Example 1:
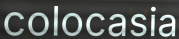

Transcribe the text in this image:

colocasia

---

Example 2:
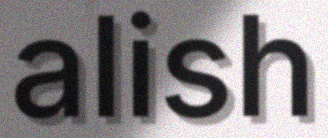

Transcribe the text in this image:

alish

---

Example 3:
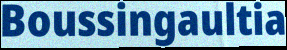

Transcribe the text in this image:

Boussingaultia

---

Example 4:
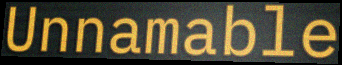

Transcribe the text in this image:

Unnamable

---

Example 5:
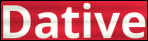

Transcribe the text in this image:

Dative